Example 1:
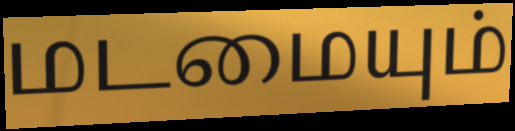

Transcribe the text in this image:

மடமையும்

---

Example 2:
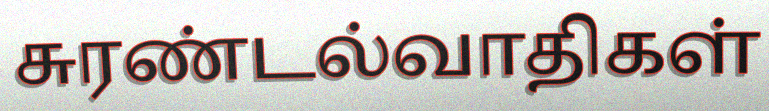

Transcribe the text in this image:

சுரண்டல்வாதிகள்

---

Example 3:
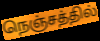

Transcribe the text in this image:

நெஞ்சத்தில்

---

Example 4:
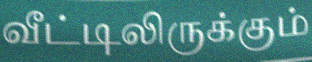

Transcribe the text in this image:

வீட்டிலிருக்கும்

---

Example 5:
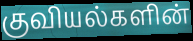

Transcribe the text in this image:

குவியல்களின்